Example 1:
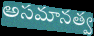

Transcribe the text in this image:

అసమానత్వ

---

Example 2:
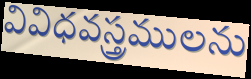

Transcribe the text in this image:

వివిధవస్త్రములను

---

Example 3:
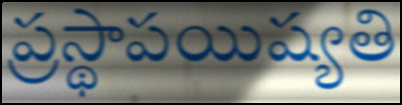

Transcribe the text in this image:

ప్రస్థాపయిష్యతి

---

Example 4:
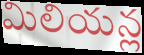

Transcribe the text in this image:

మిలియన్ల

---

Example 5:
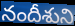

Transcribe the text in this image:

నందీశుని